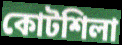
কোটশিলা